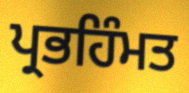
ਪ੍ਰਭਹਿੰਮਤ